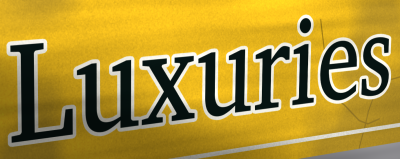
Luxuries